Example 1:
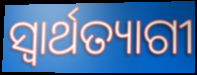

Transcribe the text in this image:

ସ୍ୱାର୍ଥତ୍ୟାଗୀ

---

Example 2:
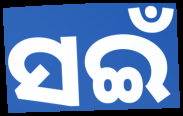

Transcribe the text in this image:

ସଇଁ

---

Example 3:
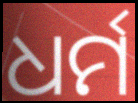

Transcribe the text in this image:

ଧର୍ମ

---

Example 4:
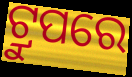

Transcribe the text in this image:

ଟ୍ରୁପରେ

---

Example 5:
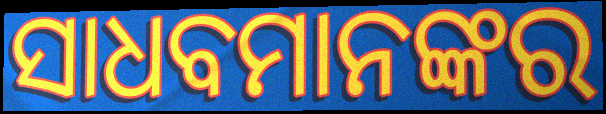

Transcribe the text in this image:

ସାଧବମାନଙ୍କର